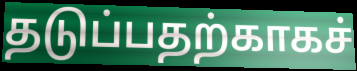
தடுப்பதற்காகச்